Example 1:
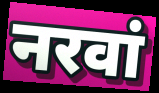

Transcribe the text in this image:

नरवां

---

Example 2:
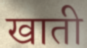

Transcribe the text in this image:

खाती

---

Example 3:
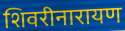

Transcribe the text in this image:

शिवरीनारायण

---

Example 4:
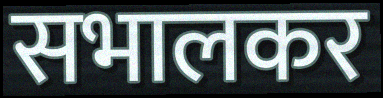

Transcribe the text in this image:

सभालकर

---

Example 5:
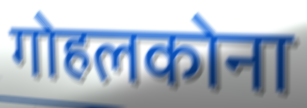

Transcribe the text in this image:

गोहलकोना